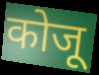
कोजू